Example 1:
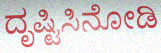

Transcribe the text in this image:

ದೃಷ್ಟಿಸಿನೋಡಿ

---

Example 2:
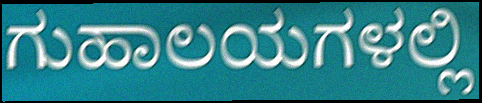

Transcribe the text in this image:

ಗುಹಾಲಯಗಳಲ್ಲಿ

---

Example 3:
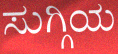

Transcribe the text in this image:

ಸುಗ್ಗಿಯ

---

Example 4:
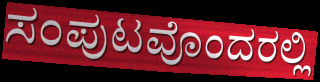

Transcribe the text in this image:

ಸಂಪುಟವೊಂದರಲ್ಲಿ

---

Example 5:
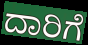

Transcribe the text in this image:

ದಾರಿಗೆ